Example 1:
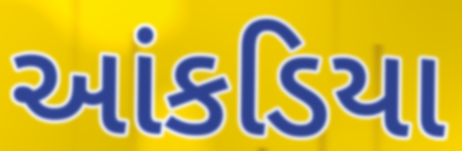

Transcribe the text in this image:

આંકડિયા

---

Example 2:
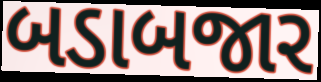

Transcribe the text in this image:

બડાબજાર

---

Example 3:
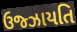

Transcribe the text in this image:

ઉજ્ઝાયતિ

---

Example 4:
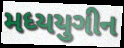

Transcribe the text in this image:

મધ્યયુગીન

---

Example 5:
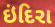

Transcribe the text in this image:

ઇંદિરા